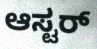
ಆಸ್ಟರ್